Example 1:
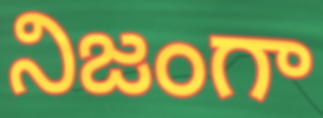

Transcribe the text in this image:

నిజంగా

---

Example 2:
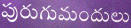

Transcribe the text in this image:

పురుగుమందులు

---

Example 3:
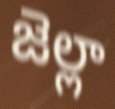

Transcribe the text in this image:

జెల్లా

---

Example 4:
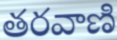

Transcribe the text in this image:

తరవాణి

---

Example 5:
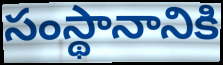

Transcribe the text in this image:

సంస్థానానికి